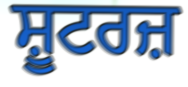
ਸ਼ੂਟਰਜ਼